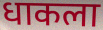
धाकला